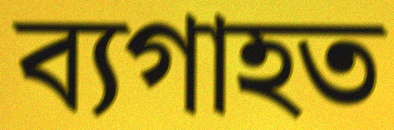
ব্যগাহত